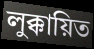
লুক্কায়িত